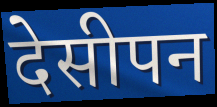
देसीपन